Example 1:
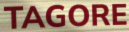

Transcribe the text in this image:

TAGORE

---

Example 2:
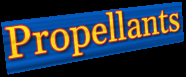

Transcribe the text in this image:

Propellants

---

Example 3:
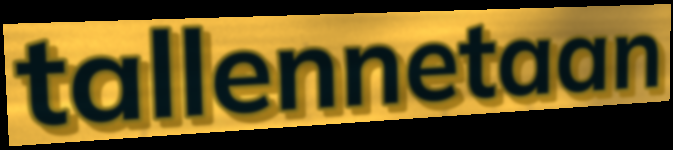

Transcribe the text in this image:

tallennetaan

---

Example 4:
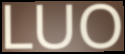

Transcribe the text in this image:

LUO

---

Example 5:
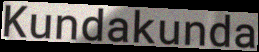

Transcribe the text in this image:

Kundakunda